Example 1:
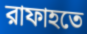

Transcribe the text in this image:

রাফাহতে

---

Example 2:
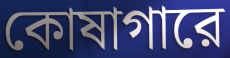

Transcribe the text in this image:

কোষাগারে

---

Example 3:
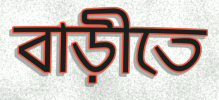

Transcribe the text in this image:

বাড়ীতে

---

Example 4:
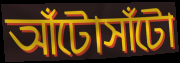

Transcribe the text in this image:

আঁটোসাঁটো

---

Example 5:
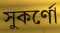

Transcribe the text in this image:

সুকর্ণো